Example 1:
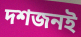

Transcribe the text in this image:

দশজনই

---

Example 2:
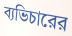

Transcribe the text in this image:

ব্যভিচারের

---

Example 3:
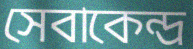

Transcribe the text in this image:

সেবাকেন্দ্র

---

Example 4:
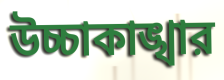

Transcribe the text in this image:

উচ্চাকাঙ্খার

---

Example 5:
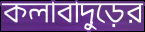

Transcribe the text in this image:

কলাবাদুড়ের